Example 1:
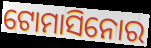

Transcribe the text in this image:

ଟୋମାସିନୋର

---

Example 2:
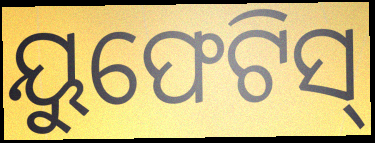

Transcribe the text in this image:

ୟୁଫେଟିସ୍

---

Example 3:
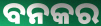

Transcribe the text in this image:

ବନକର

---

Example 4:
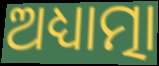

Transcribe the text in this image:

ଅଧ୍ୟାତ୍ମା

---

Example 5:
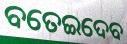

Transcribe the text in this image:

ବତେଇଦେବ